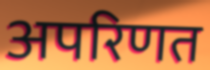
अपरिणत